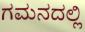
ಗಮನದಲ್ಲಿ